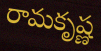
రామకృష్ణ